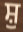
ਸ਼ੁ